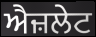
ਐਜ਼ਲੇਟ